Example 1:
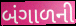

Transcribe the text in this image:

બંગાળની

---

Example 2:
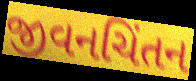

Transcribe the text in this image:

જીવનચિંતન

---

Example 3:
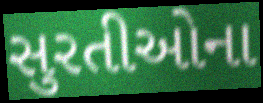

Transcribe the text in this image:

સુરતીઓના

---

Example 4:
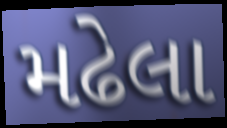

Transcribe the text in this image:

મઢેલા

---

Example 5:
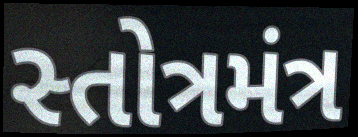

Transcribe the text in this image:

સ્તોત્રમંત્ર